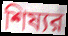
শিষ্যর